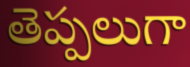
తెప్పలుగా